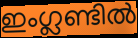
ഇംഗ്ലണ്ടിൽ